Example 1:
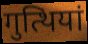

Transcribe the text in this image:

गुत्थियां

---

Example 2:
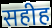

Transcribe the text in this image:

सहीह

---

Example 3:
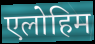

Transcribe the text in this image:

एलोहिम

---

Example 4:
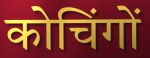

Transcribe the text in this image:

कोचिंगों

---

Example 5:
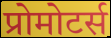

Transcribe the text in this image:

प्रोमोटर्स